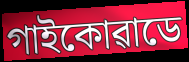
গাইকোৱাডে